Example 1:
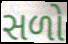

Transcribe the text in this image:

સળો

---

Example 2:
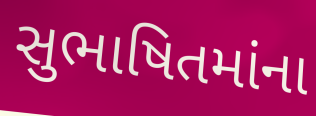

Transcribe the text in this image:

સુભાષિતમાંના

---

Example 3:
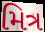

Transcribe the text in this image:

મિત્ર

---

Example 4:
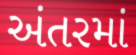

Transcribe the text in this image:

અંતરમાં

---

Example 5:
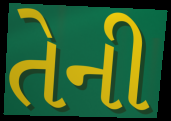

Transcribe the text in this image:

તેની